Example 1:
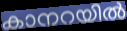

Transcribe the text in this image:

കാനറയിൽ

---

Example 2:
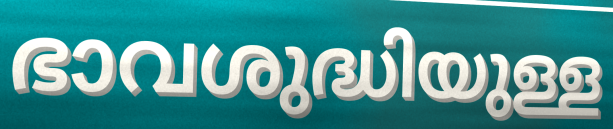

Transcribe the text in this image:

ഭാവശുദ്ധിയുള്ള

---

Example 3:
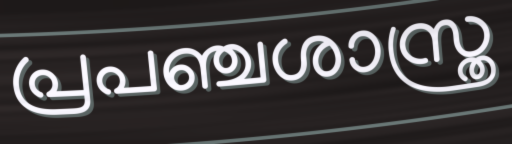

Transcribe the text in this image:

പ്രപഞ്ചശാസ്ത്ര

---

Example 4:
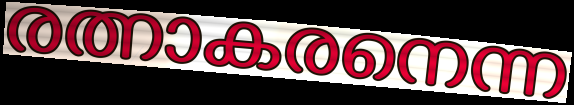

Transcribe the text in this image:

രത്നാകരനെന്ന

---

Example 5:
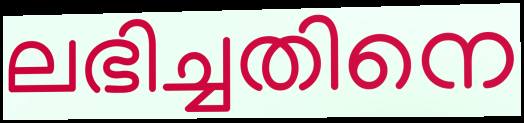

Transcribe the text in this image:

ലഭിച്ചതിനെ